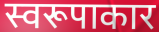
स्वरूपाकार